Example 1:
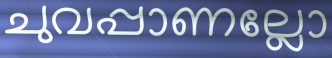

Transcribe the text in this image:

ചുവപ്പാണല്ലോ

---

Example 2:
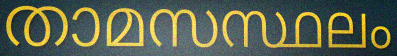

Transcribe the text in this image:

താമസസ്ഥലം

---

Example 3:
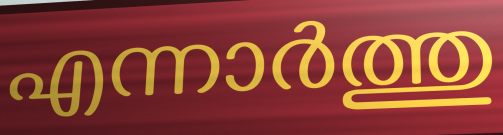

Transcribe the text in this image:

എന്നാർത്തു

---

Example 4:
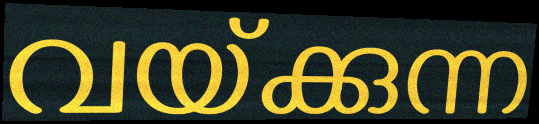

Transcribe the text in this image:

വയ്‌ക്കുന്ന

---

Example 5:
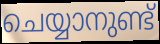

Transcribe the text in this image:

ചെയ്യാനുണ്ട്